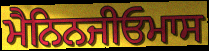
ਮੈਨਿਨਜੀਓਮਾਸ